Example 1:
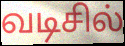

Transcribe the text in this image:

வடிசில்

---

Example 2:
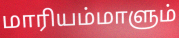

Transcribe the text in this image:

மாரியம்மாளும்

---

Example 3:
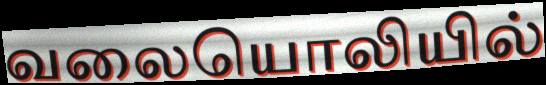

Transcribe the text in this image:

வலையொலியில்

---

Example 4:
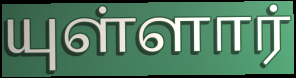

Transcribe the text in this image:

யுள்ளார்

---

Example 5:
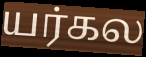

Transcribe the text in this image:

யர்கல